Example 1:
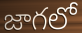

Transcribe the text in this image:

జాగలో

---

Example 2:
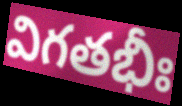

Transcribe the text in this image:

విగతభీః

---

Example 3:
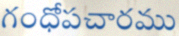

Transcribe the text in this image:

గంధోపచారము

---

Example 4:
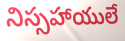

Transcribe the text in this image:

నిస్సహాయులే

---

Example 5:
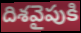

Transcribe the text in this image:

దిశవైపుకి